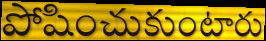
పోషించుకుంటారు